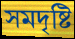
সমদৃষ্টি